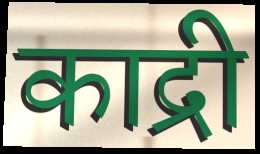
काद्री